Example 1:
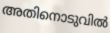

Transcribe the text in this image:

അതിനൊടുവിൽ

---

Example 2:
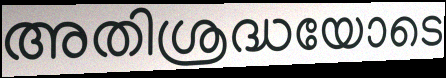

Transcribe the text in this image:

അതിശ്രദ്ധയോടെ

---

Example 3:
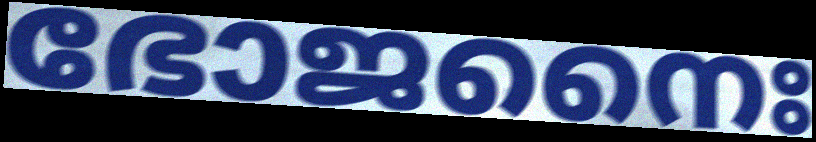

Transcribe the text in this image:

ഭോജനൈഃ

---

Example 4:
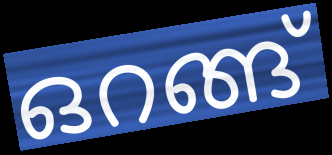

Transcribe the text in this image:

ഒറങ്ങ്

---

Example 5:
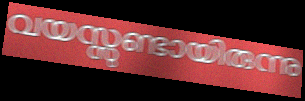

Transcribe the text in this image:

വയസ്സുണ്ടായിരുന്നു